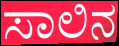
ಸಾಲಿನ